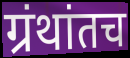
ग्रंथांतच